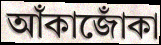
আঁকাজোঁকা